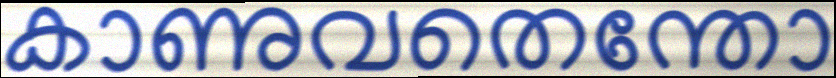
കാണുവതെന്തോ